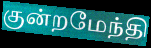
குன்றமேந்தி